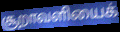
சூறாவளியைக்